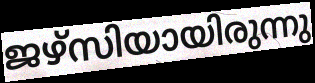
ജഴ്സിയായിരുന്നു